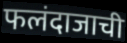
फलंदाजाची